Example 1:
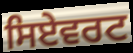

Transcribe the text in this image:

ਸਿਏਵਰਟ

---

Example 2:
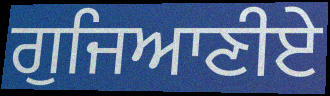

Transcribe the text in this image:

ਗੁਜਿਆਣੀਏ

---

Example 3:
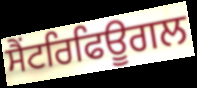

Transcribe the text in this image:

ਸੈਂਟਰਿਫਿਊਗਲ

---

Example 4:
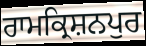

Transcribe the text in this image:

ਰਾਮਕ੍ਰਿਸ਼ਨਪੁਰ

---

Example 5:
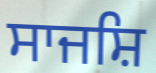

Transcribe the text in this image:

ਸਾਜਸ਼ਿ